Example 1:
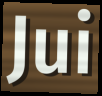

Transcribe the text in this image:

Jui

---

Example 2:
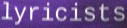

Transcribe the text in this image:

lyricists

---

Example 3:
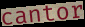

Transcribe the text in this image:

cantor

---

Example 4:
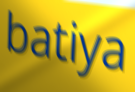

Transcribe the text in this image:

batiya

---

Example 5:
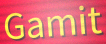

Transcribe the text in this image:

Gamit